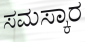
ಸಮಸ್ಕಾರ